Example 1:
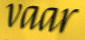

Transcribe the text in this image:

vaar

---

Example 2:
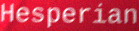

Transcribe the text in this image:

Hesperian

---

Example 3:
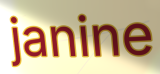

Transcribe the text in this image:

janine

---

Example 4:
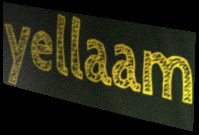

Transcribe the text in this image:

yellaam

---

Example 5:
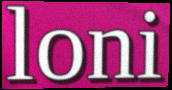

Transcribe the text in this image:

loni